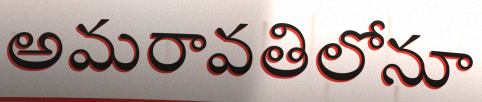
అమరావతిలోనూ